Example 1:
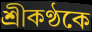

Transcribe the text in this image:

শ্রীকণ্ঠকে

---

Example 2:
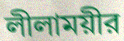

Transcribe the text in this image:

লীলাময়ীর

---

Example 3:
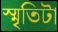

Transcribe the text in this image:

স্মৃতিটা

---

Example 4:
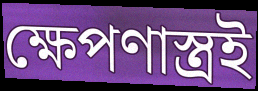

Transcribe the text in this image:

ক্ষেপণাস্ত্রই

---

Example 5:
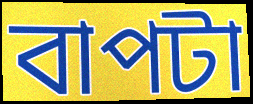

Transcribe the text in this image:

বাপটা